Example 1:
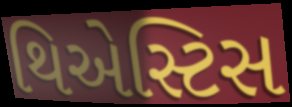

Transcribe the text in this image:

થિએસ્ટિસ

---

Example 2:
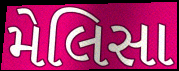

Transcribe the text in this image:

મેલિસા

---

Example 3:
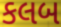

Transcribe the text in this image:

કલબ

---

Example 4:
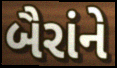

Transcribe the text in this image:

બૈરાંને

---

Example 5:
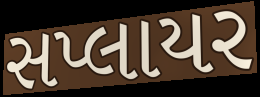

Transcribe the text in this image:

સપ્લાયર